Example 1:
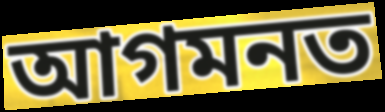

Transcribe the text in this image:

আগমনত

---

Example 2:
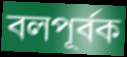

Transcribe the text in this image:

বলপূৰ্বক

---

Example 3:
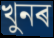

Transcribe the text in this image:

খুনৰ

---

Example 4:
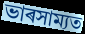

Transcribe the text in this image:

ভাৰসাম্যত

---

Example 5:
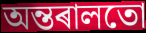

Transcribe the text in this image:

অন্তৰালতো